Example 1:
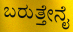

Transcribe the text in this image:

ಬರುತ್ತೇನೈ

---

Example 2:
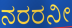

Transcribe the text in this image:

ನರರನೀ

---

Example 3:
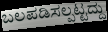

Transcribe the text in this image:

ಬಲಪಡಿಸಲ್ಪಟ್ಟದ್ದು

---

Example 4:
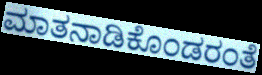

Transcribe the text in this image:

ಮಾತನಾಡಿಕೊಂಡರಂತೆ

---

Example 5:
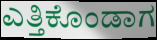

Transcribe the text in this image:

ಎತ್ತಿಕೊಂಡಾಗ